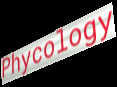
Phycology